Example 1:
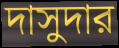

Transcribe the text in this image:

দাসুদার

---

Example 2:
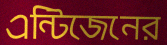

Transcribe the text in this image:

এন্টিজেনের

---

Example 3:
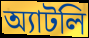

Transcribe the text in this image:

অ্যাটলি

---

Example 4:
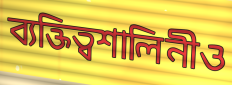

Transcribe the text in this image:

ব্যক্তিত্বশালিনীও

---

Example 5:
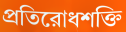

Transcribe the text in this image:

প্রতিরোধশক্তি